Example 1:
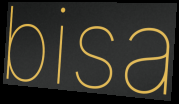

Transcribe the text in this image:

bisa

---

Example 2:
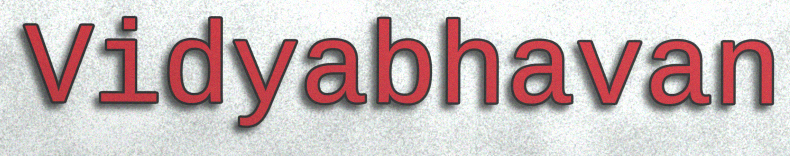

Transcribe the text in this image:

Vidyabhavan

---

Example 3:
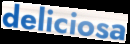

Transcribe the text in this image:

deliciosa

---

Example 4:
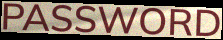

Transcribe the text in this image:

PASSWORD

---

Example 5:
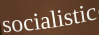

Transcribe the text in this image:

socialistic